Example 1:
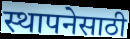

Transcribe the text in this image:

स्थापनेसाठी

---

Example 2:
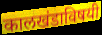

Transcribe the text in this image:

कालखंडाविषयी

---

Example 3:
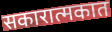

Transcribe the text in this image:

सकारात्मकात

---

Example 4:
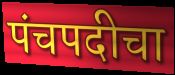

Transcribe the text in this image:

पंचपदीचा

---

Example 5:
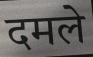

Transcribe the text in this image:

दमले